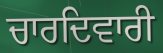
ਚਾਰਦਿਵਾਰੀ